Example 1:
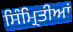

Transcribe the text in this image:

ਸਿੰਮ੍ਰਿਤੀਆਂ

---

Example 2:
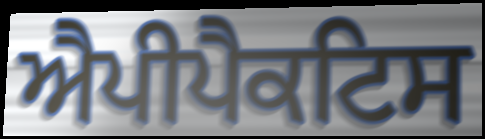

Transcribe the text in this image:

ਐਪੀਪੈਕਟਿਸ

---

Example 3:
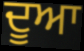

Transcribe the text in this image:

ਦੂਆ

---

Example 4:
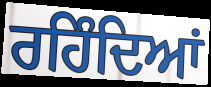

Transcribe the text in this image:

ਰਹਿੰਦਿਆਂ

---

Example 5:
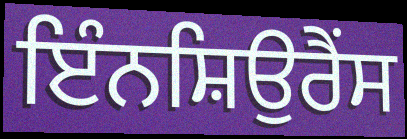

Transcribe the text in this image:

ਇੰਨਸ਼ਿਉਰੈਂਸ